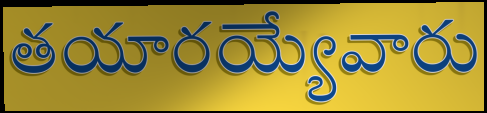
తయారయ్యేవారు